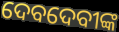
ଦେବଦେବୀଙ୍କ